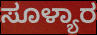
ಸೂಳ್ಯಾರ